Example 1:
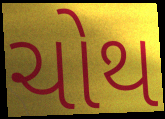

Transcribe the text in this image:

ચોથ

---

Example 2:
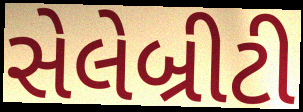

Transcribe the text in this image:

સેલેબ્રીટી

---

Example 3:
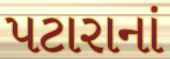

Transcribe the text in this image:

પટારાનાં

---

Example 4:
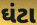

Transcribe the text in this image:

ઘંટા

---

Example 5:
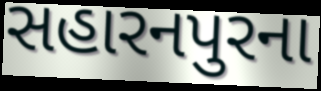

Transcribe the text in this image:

સહારનપુરના